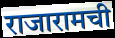
राजारामची